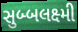
સુબ્બલક્ષ્મી